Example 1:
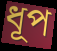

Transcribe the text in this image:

ধূপ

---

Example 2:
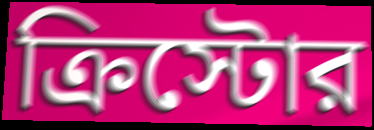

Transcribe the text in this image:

ক্রিস্টোর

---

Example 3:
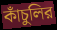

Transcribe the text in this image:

কাঁচুলির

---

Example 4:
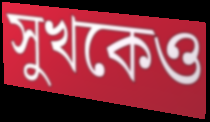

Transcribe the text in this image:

সুখকেও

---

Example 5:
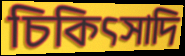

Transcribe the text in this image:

চিকিৎসাদি